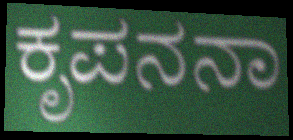
ಕೃಪನನಾ